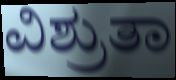
ವಿಶ್ರುತಾ